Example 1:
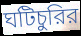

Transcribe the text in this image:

ঘটিচুরির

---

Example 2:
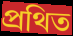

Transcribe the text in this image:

প্রথিত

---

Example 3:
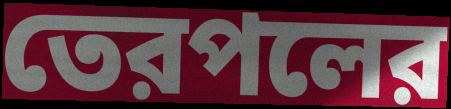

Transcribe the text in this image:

তেরপলের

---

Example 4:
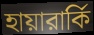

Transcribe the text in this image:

হায়ারার্কি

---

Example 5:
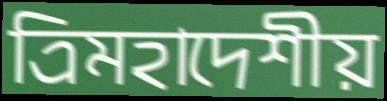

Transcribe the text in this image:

ত্রিমহাদেশীয়